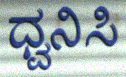
ಧ್ವನಿಸಿ